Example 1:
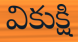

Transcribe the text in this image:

వికుక్షి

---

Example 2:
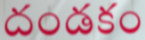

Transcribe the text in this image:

దండకం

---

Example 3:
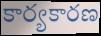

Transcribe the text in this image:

కార్యకారణ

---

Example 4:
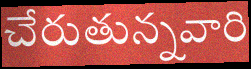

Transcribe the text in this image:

చేరుతున్నవారి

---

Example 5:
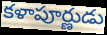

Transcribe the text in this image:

కళాపూర్ణుడు